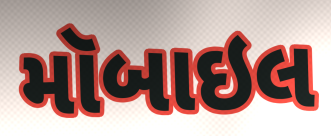
મૉબાઇલ